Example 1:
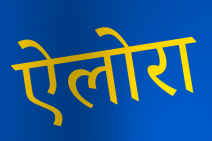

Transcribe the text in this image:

ऐलोरा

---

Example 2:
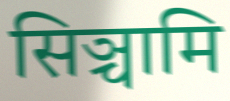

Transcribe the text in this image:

सिञ्चामि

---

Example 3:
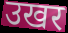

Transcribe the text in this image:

उखर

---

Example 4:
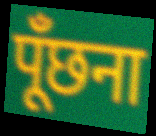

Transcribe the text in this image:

पूँछना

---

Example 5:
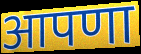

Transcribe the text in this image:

आपणा